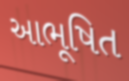
આભૂષિત